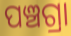
ପଞ୍ଚଗ୍ରା